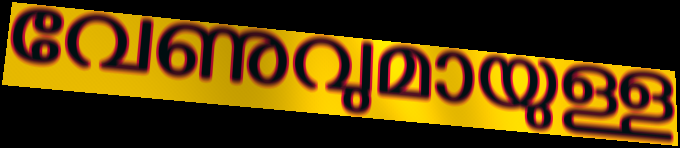
വേണുവുമായുള്ള